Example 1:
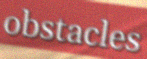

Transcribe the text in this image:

obstacles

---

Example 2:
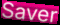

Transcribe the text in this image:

Saver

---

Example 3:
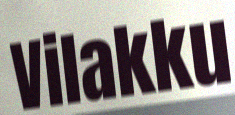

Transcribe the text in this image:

Vilakku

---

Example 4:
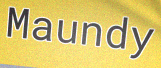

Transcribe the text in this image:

Maundy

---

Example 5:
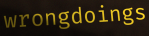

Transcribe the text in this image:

wrongdoings